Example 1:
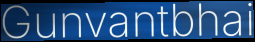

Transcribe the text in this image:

Gunvantbhai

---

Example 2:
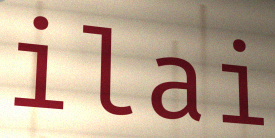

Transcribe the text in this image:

ilai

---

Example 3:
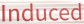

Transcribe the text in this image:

Induced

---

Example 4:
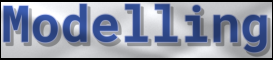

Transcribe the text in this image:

Modelling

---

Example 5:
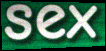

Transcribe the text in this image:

sex